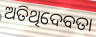
ଅତିଥିଦେବତା